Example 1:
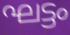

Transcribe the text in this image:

ഘട്ടം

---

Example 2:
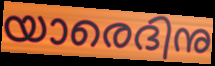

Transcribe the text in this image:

യാരെദിനു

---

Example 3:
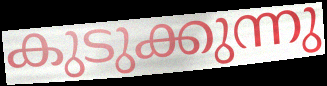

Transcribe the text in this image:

കുടുക്കുന്നു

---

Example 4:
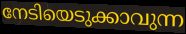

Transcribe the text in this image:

നേടിയെടുക്കാവുന്ന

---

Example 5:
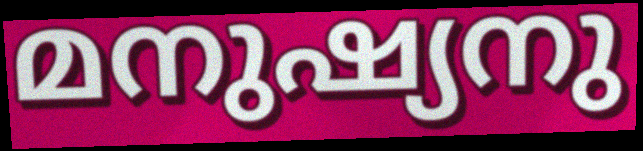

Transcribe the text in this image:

മനുഷ്യനു